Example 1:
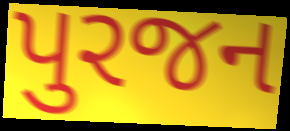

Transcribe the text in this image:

પુરજન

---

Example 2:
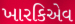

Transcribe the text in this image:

ખારકિએવ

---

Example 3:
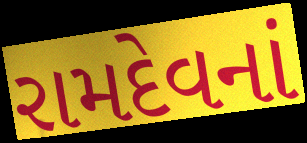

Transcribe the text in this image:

રામદેવનાં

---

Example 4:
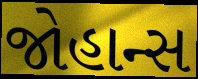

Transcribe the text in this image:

જોહાન્સ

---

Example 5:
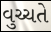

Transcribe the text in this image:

વુચ્ચતે